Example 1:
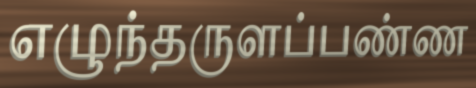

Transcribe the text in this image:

எழுந்தருளப்பண்ண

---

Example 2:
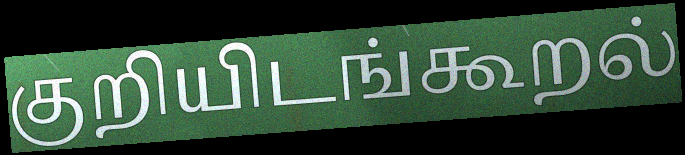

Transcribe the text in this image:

குறியிடங்கூறல்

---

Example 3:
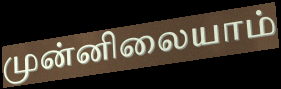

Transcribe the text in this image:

முன்னிலையாம்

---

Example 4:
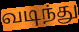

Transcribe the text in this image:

வடிந்து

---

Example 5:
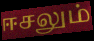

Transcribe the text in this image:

ஈசலும்